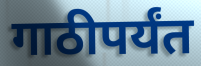
गाठीपर्यंत